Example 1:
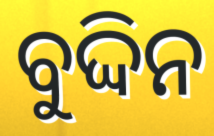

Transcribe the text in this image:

ବୁଦ୍ଦିନ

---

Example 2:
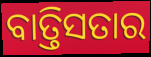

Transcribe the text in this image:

ବାତ୍ତିସତାର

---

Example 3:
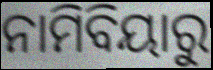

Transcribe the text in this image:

ନାମିବିୟାରୁ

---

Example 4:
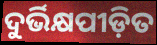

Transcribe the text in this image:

ଦୁର୍ଭିକ୍ଷପୀଡ଼ିତ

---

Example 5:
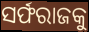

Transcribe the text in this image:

ସର୍ଫରାଜକୁ